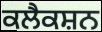
ਕਲੈਕਸ਼ਨ